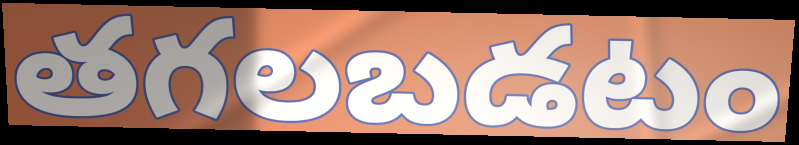
తగలబడటం